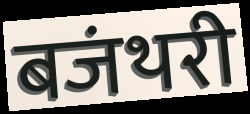
बजंथरी